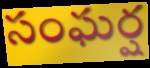
సంఘర్ష